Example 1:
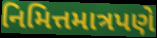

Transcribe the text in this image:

નિમિત્તમાત્રપણે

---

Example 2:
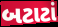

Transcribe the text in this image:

બટાટાં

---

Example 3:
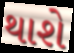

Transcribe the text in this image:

થાશે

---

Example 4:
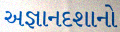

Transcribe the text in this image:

અજ્ઞાનદશાનો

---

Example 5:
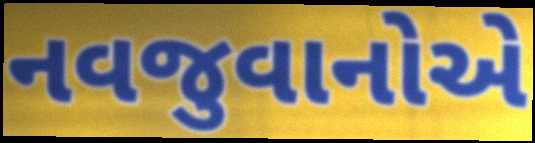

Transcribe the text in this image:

નવજુવાનોએ